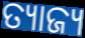
ତ୍ୟାଜ୍ୟ